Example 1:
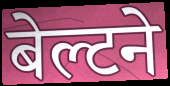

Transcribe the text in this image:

बेल्टने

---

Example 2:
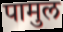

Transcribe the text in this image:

पामुल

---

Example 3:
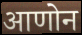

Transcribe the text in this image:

आणोन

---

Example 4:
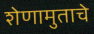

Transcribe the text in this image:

शेणामुताचे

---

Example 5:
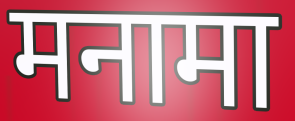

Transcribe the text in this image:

मनामा